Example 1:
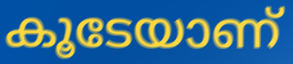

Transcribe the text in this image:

കൂടേയാണ്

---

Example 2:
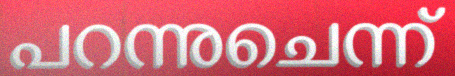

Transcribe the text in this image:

പറന്നുചെന്ന്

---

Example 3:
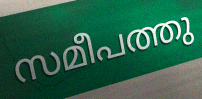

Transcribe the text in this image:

സമീപത്തു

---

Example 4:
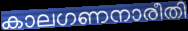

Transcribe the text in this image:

കാലഗണനാരീതി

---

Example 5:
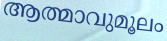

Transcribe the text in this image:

ആത്മാവുമൂലം